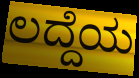
ಲದ್ದೆಯ